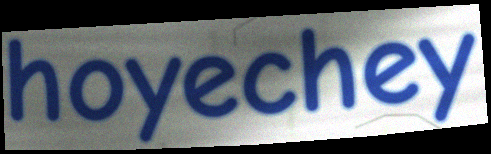
hoyechey